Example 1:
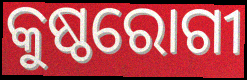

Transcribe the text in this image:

କୁଷ୍ଠରୋଗୀ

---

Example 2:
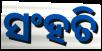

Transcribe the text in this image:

ସଂହତି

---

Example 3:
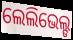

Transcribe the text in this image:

ଲେଲିଭେଲ୍ଡ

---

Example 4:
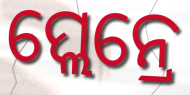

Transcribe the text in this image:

ପ୍ଲେନ୍ରେ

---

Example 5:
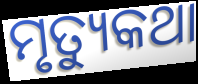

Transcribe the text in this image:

ମୃତ୍ୟୁକଥା